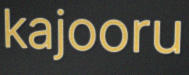
kajooru